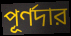
পূর্ণদার